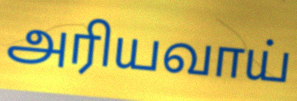
அரியவாய்